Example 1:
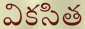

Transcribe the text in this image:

వికసిత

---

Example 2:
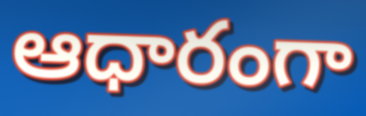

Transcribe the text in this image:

ఆధారంగా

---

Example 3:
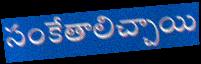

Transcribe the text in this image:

సంకేతాలిచ్చాయి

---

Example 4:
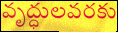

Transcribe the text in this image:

వృద్ధులవరకు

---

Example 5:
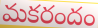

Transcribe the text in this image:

మకరందం